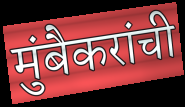
मुंबैकरांची